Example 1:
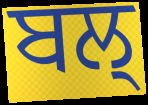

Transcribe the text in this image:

ਬਲ੍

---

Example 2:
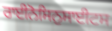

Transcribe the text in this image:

ਰਾਈਨੋਸਿਨੁਸਾਈਟਸ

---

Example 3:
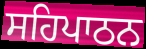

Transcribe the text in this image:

ਸਹਿਪਾਠਨ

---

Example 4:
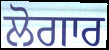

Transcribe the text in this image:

ਲੋਗਾਰ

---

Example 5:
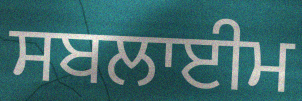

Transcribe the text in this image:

ਸਬਲਾਈਮ